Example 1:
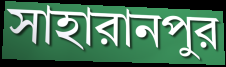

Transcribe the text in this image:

সাহারানপুর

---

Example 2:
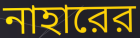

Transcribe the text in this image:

নাহারের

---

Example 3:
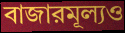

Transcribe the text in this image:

বাজারমূল্যও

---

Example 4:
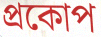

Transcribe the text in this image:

প্রকোপ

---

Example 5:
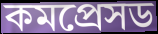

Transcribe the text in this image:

কমপ্রেসড